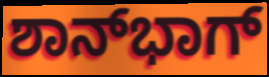
ಶಾನ್‍ಭಾಗ್